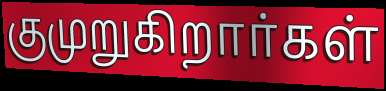
குமுறுகிறார்கள்